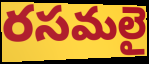
రసమలై